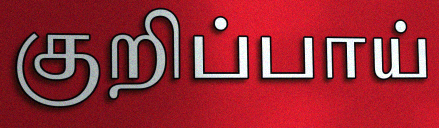
குறிப்பாய்